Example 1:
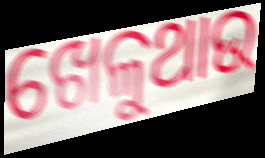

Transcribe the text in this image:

ଖେଳୁଥାଉ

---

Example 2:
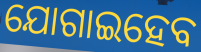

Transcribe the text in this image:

ଯୋଗାଇହେବ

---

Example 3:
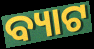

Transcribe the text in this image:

ବ୍ୟାଟ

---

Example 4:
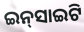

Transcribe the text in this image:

ଇନ୍‌ସାଇଟି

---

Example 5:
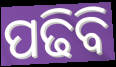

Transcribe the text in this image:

ପଢିବି